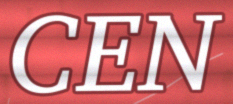
CEN